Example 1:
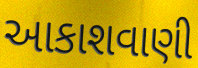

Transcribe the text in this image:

આકાશવાણી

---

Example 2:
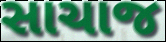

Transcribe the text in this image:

સાચાજ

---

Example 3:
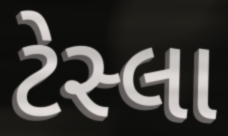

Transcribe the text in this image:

ટેસ્લા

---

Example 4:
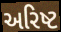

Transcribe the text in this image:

અરિષ્ટ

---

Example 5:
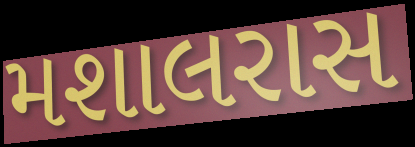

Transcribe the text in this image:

મશાલરાસ